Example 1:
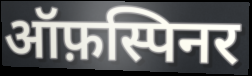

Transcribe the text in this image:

ऑफ़स्पिनर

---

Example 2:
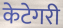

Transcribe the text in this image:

केटेगरी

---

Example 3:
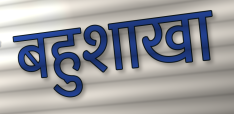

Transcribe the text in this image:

बहुशाखा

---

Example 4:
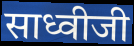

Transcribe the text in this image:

साध्वीजी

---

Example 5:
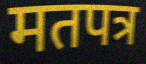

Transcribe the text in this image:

मतपत्र